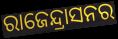
ରାଜେନ୍ଦ୍ରାସନର